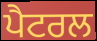
ਪੈਟਰਲ